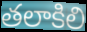
తలాకిలి